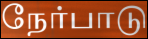
நேர்பாடு